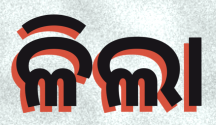
ଳିଲା